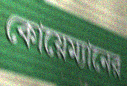
কোয়েম্যানের